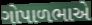
ગોપાળભાએ